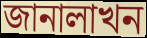
জানালাখন